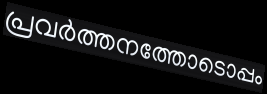
പ്രവർത്തനത്തോടൊപ്പം